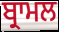
ਬ੍ਰਾਮਲ